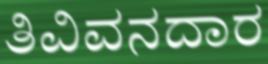
ತಿವಿವನದಾರ